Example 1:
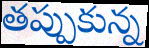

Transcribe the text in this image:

తప్పుకున్న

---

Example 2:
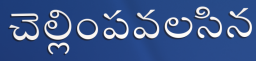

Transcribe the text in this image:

చెల్లింపవలసిన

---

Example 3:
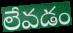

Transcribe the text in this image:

లేవడం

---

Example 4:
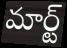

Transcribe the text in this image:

మార్ట్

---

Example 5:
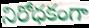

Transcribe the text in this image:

నిరోధకంగా